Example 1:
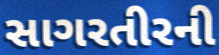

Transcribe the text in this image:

સાગરતીરની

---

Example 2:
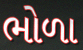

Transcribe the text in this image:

ભોળા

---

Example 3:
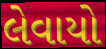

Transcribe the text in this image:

લેવાયો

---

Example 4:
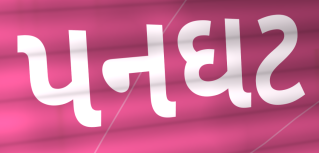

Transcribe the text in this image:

પનઘટ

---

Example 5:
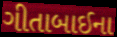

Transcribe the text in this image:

ગીતાબાઈના